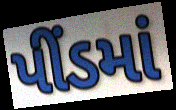
પીંડમાં